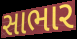
સાભાર